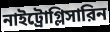
নাইট্রোগ্লিসারিন